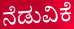
ನೆಡುವಿಕೆ